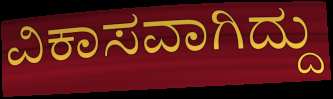
ವಿಕಾಸವಾಗಿದ್ದು